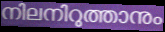
നിലനിറുത്താനും